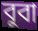
বুবা